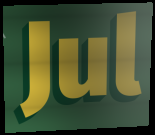
Jul